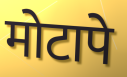
मोटापे